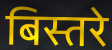
बिस्तरे